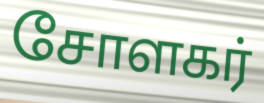
சோளகர்